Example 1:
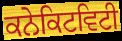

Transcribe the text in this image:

ਕਨੇਕਿਟਵਿਟੀ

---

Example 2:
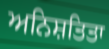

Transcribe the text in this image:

ਅਨਿਸ਼ਤਿਤਾ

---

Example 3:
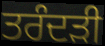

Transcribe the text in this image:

ਤਰੰਦੜੀ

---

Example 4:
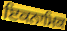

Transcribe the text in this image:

ਇਕਨਾਮਿਕ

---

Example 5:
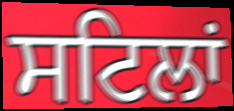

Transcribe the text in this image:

ਸਟਿਲਾਂ